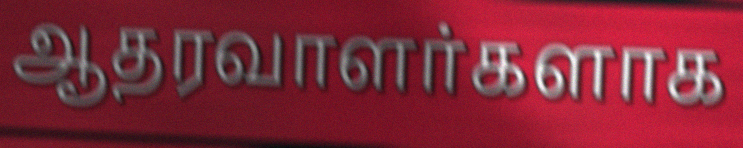
ஆதரவாளர்களாக